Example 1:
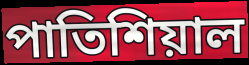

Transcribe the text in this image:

পাতিশিয়াল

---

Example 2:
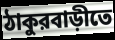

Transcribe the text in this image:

ঠাকুরবাড়ীতে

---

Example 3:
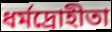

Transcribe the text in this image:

ধর্মদ্রোহীতা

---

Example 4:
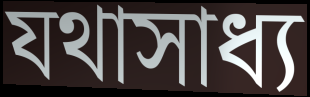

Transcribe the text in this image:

যথাসাধ্য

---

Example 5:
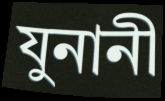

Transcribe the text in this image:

যুনানী